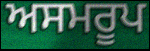
ਅਸਮਰੂਪ